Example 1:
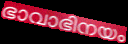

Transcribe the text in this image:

ഭാവാഭിനയം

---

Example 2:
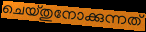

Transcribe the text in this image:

ചെയ്തുനോക്കുന്നത്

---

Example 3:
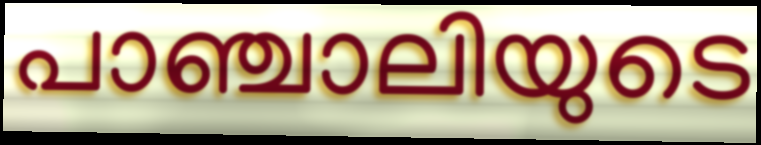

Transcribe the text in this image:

പാഞ്ചാലിയുടെ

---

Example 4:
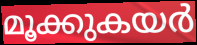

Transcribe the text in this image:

മൂക്കുകയർ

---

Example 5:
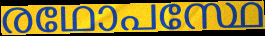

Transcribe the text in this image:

രഥോപസ്ഥേ